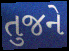
તુજને